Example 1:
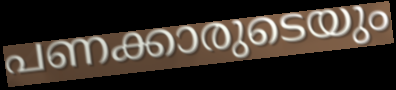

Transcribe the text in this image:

പണക്കാരുടെയും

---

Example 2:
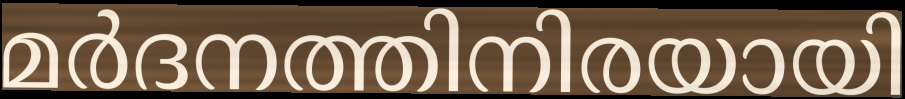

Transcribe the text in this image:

മർദനത്തിനിരയായി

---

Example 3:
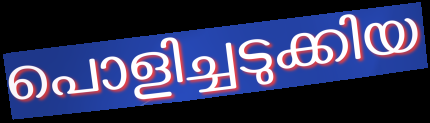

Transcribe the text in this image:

പൊളിച്ചടുക്കിയ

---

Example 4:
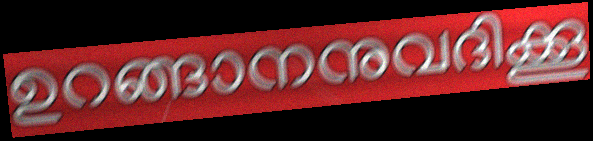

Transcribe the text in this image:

ഉറങ്ങാനനുവദിക്കൂ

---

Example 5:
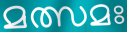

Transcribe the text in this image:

മത്സമഃ